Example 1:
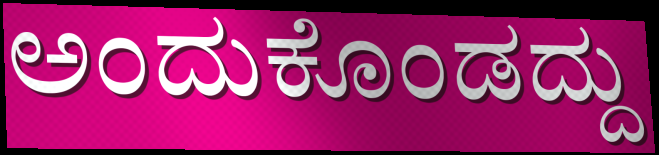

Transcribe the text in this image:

ಅಂದುಕೊಂಡದ್ದು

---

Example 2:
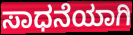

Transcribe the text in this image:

ಸಾಧನೆಯಾಗಿ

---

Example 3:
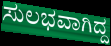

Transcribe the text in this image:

ಸುಲಭವಾಗಿದ್ದ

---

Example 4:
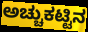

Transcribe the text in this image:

ಅಚ್ಚುಕಟ್ಟಿನ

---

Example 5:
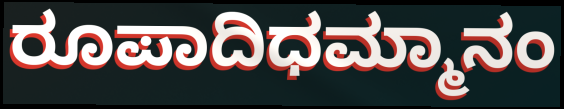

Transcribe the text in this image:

ರೂಪಾದಿಧಮ್ಮಾನಂ